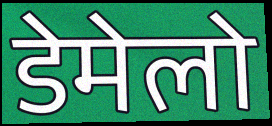
डेमेलो